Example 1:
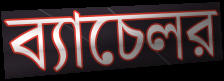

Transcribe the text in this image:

ব্যাচেলর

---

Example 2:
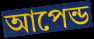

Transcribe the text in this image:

আপেন্ড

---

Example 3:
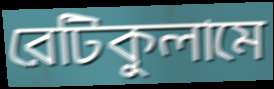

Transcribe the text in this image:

রেটিকুলামে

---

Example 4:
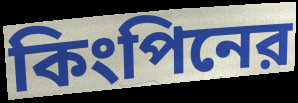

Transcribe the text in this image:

কিংপিনের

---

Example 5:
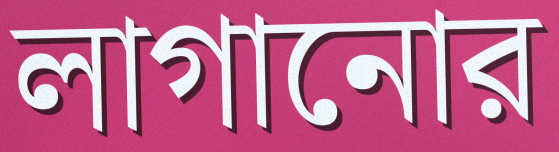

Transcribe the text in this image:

লাগানোর